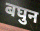
बघुन